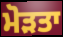
ਮੋੜਤਾ